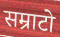
सम्राटो